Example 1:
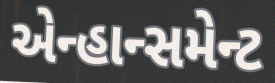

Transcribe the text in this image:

એન્હાન્સમેન્ટ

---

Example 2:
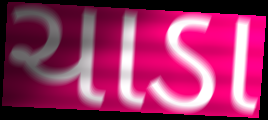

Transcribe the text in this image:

ચાડા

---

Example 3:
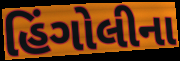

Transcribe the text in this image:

હિંગોલીના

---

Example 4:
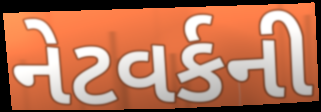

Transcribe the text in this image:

નેટવર્કની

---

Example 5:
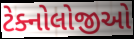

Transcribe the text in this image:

ટેક્નોલોજીઓ